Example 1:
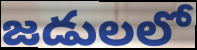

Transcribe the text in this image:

జడులలో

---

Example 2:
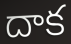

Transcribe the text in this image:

దాక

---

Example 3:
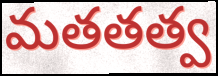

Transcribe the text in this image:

మతతత్వ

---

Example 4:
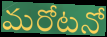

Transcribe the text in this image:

మరోటనో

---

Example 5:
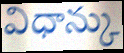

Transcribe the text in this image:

విధాన్కు